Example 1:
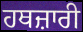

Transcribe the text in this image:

ਹਥਜ਼ਾਰੀ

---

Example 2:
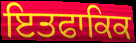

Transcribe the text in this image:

ਇਤਫਾਕਿਕ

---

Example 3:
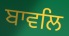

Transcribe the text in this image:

ਬਾਵਲਿ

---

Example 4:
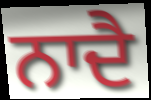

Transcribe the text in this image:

ਨਾਦੈ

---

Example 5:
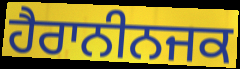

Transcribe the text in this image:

ਹੈਰਾਨੀਨਜਕ